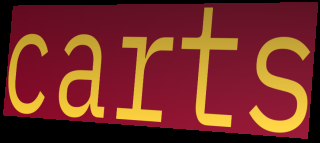
carts